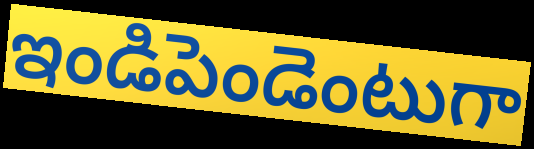
ఇండిపెండెంటుగా